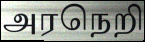
அரநெறி